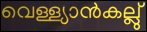
വെള്ള്യാൻകല്ലു്